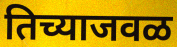
तिच्याजवळ